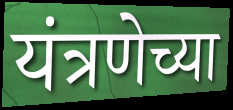
यंत्रणेच्या